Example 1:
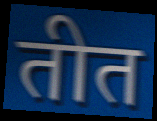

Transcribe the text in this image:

तीत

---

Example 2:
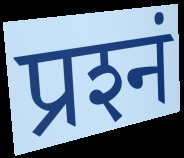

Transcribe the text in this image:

प्रश्‍नं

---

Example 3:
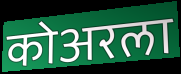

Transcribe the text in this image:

कोअरला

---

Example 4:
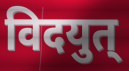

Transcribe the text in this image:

विदयुत्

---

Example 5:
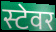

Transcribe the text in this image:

स्टेवर